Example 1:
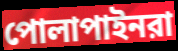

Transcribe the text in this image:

পোলাপাইনরা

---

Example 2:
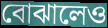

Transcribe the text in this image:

বোঝালেও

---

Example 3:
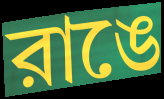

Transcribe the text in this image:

রাঙে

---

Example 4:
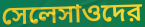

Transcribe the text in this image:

সেলেসাওদের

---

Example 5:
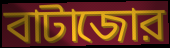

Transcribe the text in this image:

বাটাজোর